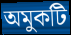
অমুকটি